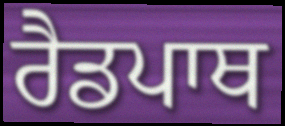
ਰੈਡਪਾਥ